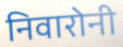
निवारोनी